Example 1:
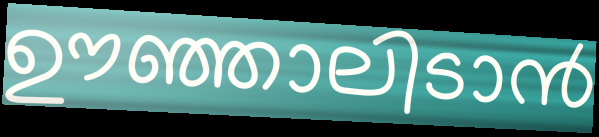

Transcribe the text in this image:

ഊഞ്ഞാലിടാൻ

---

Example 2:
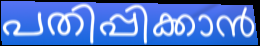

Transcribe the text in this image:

പതിപ്പിക്കാൻ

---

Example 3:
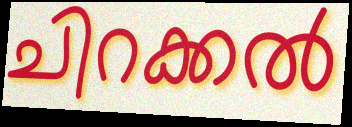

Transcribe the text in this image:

ചിറക്കൽ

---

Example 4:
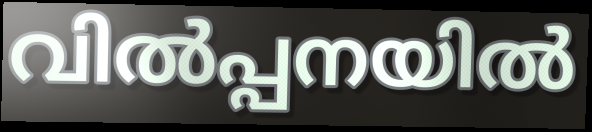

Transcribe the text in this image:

വിൽപ്പനയിൽ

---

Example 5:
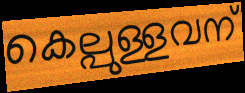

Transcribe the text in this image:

കെല്പുള്ളവന്